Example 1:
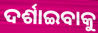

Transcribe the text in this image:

ଦର୍ଶାଇବାକୁ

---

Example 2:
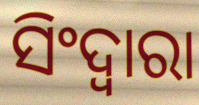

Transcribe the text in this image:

ସିଂଦ୍ୱାରା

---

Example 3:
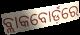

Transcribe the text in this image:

ବ୍ଲାକବୋର୍ଡ଼ରେ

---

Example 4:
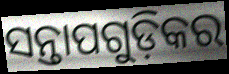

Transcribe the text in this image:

ସନ୍ତାପଗୁଡ଼ିକର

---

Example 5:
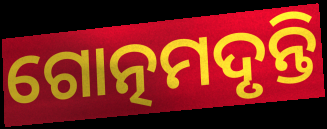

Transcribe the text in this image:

ଗୋତ୍ନମଦୃନ୍ତି